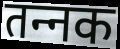
तन्नक